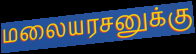
மலையரசனுக்கு